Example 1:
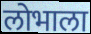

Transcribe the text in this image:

लोभाला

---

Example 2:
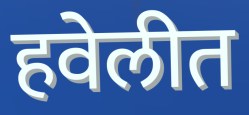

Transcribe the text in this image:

हवेलीत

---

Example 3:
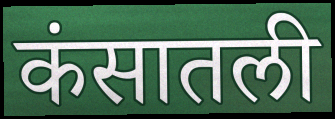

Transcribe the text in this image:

कंसातली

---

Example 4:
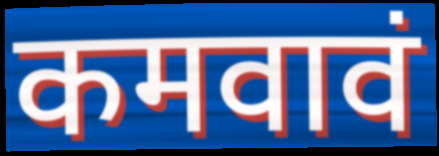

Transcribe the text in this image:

कमवावं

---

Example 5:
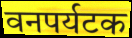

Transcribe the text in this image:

वनपर्यटक